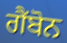
ਗੈਂਬੋਨ